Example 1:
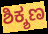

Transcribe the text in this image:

ಶಿಕ್ಶಣ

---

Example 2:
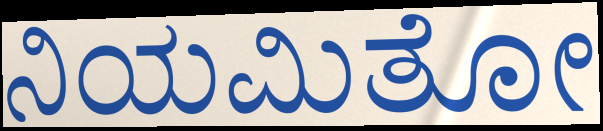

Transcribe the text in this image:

ನಿಯಮಿತೋ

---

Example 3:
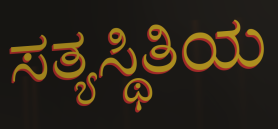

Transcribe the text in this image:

ಸತ್ಯಸ್ಥಿತಿಯ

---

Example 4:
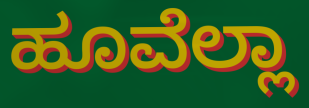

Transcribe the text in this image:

ಹೂವೆಲ್ಲಾ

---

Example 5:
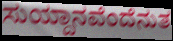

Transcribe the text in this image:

ಸುಯ್ದಾನವೆಂದೆನುತ